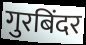
गुरबिंदर